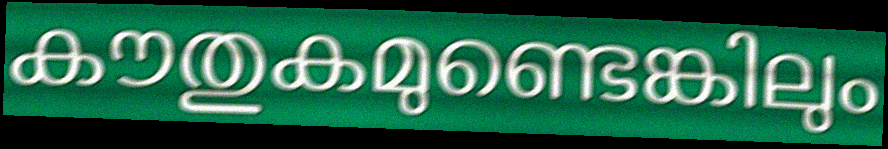
കൗതുകമുണ്ടെങ്കിലും